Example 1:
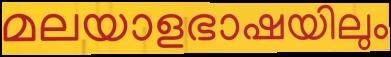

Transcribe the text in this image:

മലയാളഭാഷയിലും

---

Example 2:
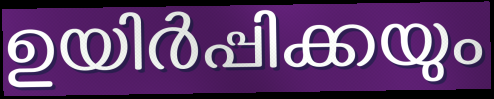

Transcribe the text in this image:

ഉയിർപ്പിക്കയും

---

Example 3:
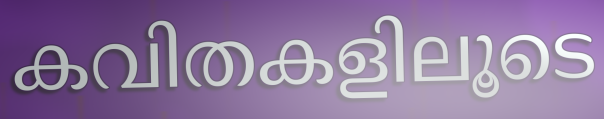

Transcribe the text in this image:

കവിതകളിലൂടെ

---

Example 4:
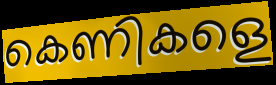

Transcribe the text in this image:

കെണികളെ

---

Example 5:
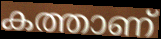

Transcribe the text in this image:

കത്താണ്